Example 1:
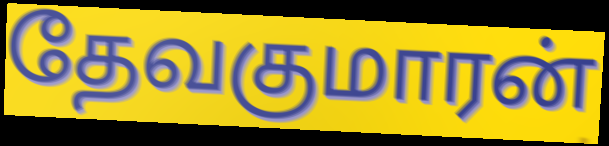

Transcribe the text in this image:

தேவகுமாரன்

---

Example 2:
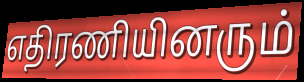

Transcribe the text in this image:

எதிரணியினரும்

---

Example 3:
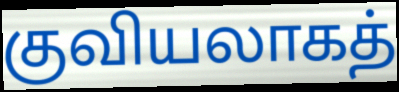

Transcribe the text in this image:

குவியலாகத்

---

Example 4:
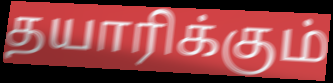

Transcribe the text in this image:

தயாரிக்கும்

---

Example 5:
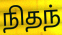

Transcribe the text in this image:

நிதந்